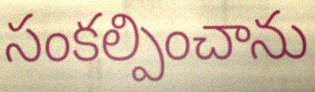
సంకల్పించాను